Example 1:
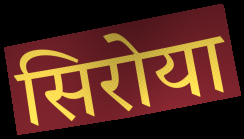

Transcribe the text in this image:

सिरोया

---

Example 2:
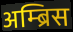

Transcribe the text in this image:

अम्ब्रिस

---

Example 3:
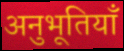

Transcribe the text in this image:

अनुभूतियाँ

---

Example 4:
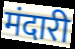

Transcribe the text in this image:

मंदारी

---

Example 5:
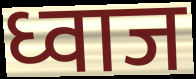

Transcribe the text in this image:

ध्वाज